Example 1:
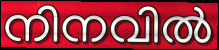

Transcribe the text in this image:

നിനവിൽ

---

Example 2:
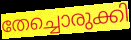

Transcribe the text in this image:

തേച്ചൊരുക്കി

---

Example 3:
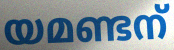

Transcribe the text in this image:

യമണ്ടന്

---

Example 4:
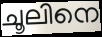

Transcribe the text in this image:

ചൂലിനെ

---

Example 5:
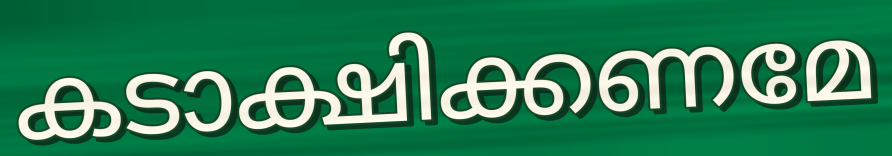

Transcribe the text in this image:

കടാക്ഷിക്കണമേ